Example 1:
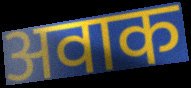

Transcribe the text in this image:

अवाक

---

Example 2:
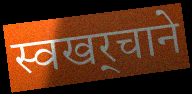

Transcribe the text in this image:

स्वखर्चाने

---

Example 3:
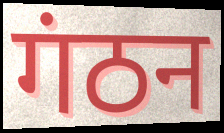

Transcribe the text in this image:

गंठन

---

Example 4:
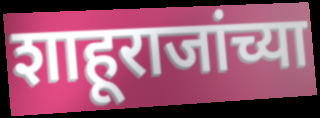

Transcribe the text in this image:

शाहूराजांच्या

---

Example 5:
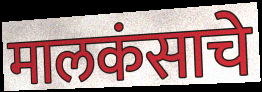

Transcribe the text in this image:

मालकंसाचे